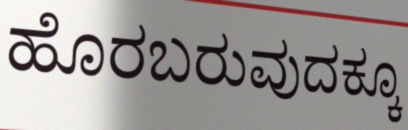
ಹೊರಬರುವುದಕ್ಕೂ